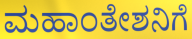
ಮಹಾಂತೇಶನಿಗೆ